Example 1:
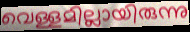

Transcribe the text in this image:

വെള്ളമില്ലായിരുന്നു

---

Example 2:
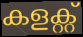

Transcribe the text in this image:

കളക്റ്റ്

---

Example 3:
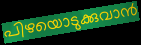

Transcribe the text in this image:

പിഴയൊടുക്കുവാൻ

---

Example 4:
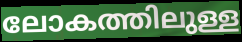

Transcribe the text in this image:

ലോകത്തിലുള്ള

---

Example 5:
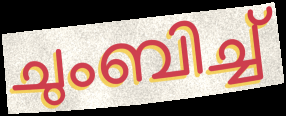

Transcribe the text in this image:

ചുംബിച്ച്